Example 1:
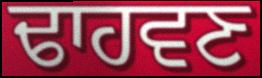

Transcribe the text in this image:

ਢਾਹਵਣ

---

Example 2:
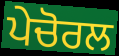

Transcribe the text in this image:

ਪੇਚੋਰਲ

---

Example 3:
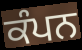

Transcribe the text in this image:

ਕੰਪਨ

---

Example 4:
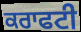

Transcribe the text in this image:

ਕਰਾਫਟੀ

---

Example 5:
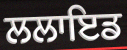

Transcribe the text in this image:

ਲਲਾਇਡ